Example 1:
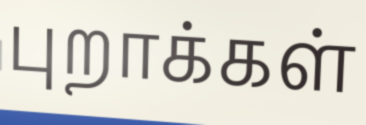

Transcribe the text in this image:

புறாக்கள்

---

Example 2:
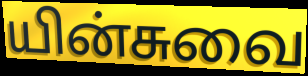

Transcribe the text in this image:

யின்சுவை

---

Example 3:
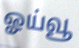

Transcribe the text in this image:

ஓய்வூ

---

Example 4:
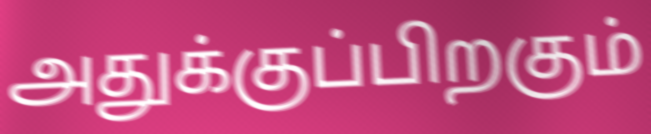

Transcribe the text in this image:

அதுக்குப்பிறகும்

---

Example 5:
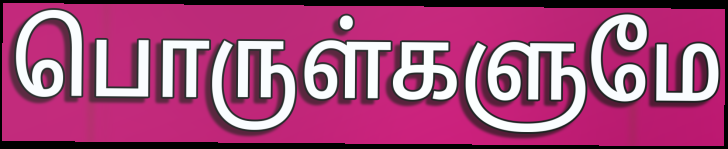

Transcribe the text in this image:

பொருள்களுமே